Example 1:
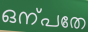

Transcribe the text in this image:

ഒന്പതേ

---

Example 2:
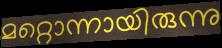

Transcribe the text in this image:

മറ്റൊന്നായിരുന്നു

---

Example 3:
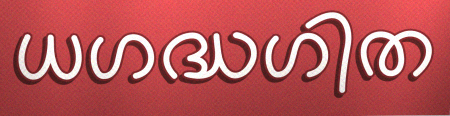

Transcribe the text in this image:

ധഗദ്ധഗിത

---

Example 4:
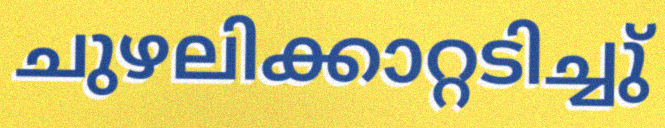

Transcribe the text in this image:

ചുഴലിക്കാറ്റടിച്ചു്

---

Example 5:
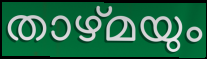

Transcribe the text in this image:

താഴ്മയും